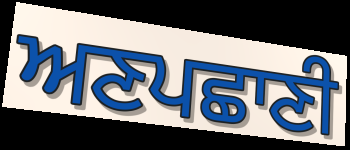
ਅਣਪਛਾਣੀ